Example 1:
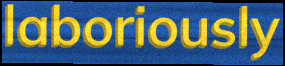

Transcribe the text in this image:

laboriously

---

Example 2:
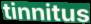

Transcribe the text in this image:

tinnitus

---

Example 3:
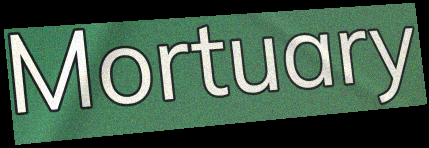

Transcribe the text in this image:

Mortuary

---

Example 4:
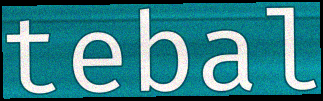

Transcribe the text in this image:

tebal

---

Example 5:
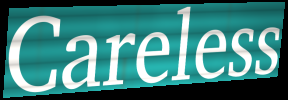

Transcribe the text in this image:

Careless